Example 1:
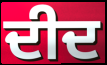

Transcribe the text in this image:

ਦੀਦ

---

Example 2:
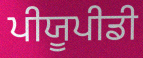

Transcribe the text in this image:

ਪੀਯੂਪੀਡੀ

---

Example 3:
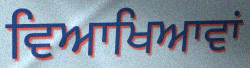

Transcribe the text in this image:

ਵਿਆਖਿਆਵਾਂ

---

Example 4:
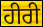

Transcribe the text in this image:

ਹੀਰੀ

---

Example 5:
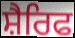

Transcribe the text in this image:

ਸ਼ੈਰਿਫ